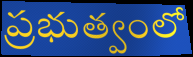
ప్రభుత్వంలో